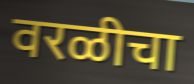
वरळीचा